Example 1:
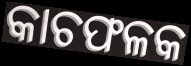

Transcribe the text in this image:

କାଚଫଳକ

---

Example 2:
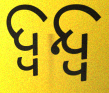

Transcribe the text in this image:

ଦ୍ବନ୍ଦ୍ବ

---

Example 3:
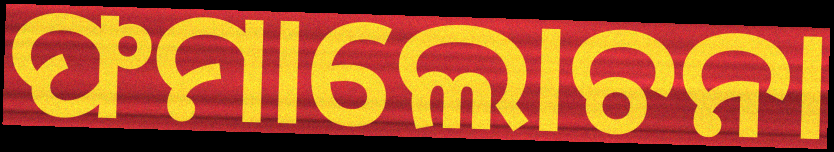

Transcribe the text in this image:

ଫମାଲୋଚନା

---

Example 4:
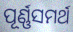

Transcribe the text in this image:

ପୂର୍ଣ୍ଣସମର୍ଥ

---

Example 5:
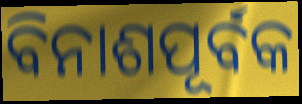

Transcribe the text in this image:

ବିନାଶପୂର୍ବକ